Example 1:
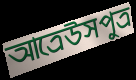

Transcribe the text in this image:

আত্রেউসপুত্র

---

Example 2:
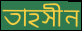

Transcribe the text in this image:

তাহসীন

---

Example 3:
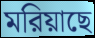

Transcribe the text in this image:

মরিয়াছে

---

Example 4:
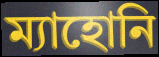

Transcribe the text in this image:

ম্যাহোনি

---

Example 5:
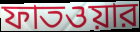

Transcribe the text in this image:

ফাতওয়ার